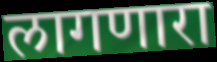
लागणारा